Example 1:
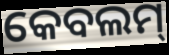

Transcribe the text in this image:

କେବଲମ୍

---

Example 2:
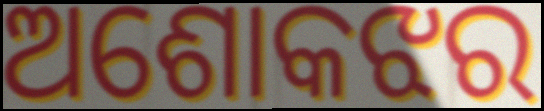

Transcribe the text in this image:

ଅଶୋକଝର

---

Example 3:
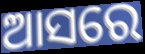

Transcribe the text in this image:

ଆସରେ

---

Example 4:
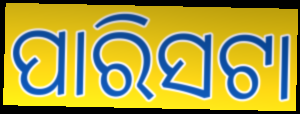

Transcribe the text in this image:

ପାରିସଟା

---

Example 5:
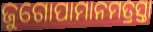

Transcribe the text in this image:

ଜୁଗୋପାମାନମତ୍ରସ୍ତା